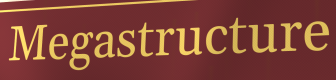
Megastructure